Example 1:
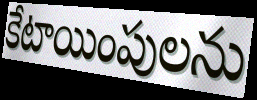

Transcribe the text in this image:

కేటాయింపులను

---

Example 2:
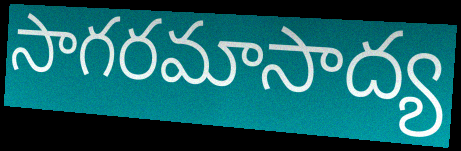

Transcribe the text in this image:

సాగరమాసాద్య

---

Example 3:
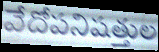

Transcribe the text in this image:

వేదోపనిషత్తుల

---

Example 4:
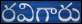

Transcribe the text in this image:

రవిగారు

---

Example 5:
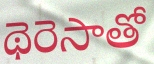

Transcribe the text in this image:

థెరెసాతో